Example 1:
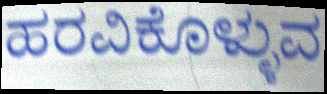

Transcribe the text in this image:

ಹರವಿಕೊಳ್ಳುವ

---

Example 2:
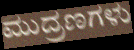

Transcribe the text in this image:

ಮುದ್ರಣಗಳು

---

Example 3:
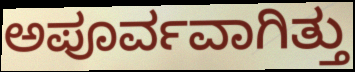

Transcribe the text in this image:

ಅಪೂರ್ವವಾಗಿತ್ತು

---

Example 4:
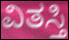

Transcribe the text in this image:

ವಿತಸ್ತಿ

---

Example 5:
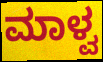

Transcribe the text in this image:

ಮಾಳ್ವ